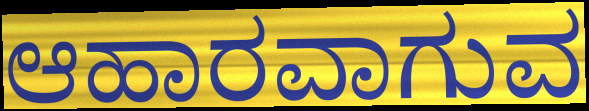
ಆಹಾರವಾಗುವ